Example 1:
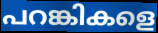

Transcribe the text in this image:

പറങ്കികളെ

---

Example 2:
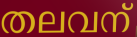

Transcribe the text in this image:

തലവന്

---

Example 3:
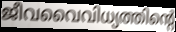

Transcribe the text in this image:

ജീവവൈവിധ്യത്തിന്റെ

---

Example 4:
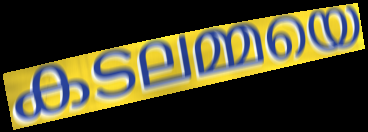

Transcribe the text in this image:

കടലമ്മയെ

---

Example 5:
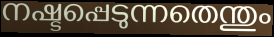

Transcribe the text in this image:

നഷ്ടപ്പെടുന്നതെന്തും